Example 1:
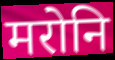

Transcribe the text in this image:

मरोनि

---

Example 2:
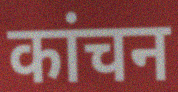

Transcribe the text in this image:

कांचन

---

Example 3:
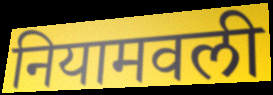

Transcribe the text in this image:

नियामवली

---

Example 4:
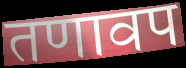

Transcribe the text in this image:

तणावप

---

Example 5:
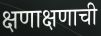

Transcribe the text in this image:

क्षणाक्षणाची